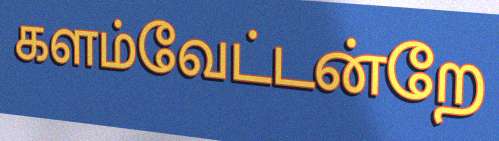
களம்வேட்டன்றே